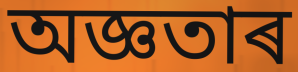
অজ্ঞতাৰ